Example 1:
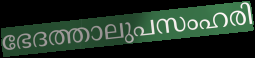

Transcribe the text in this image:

ഭേദത്താലുപസംഹരി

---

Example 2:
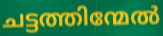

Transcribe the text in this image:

ചട്ടത്തിന്മേൽ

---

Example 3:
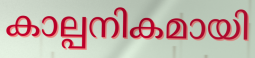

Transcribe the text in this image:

കാല്പനികമായി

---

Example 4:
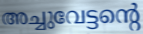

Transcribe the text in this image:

അച്ചുവേട്ടന്റെ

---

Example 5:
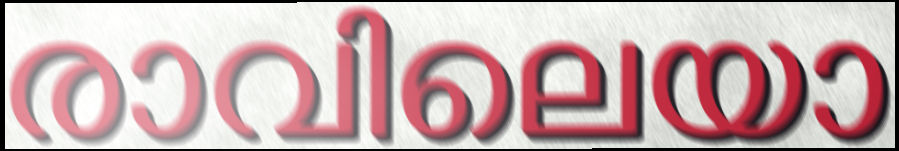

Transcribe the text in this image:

രാവിലെയാ